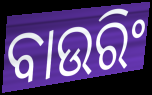
ବାଉରିଂ